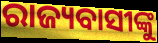
ରାଜ୍ୟବାସୀଙ୍କୁ